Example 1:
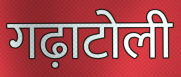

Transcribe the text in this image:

गढ़ाटोली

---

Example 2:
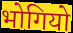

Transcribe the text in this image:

भोगियो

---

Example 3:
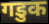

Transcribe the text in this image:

गडुक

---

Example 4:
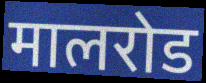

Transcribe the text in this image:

मालरोड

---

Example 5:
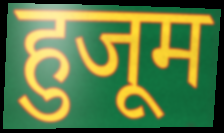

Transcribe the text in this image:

हुजूम